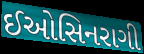
ઈઓસિનરાગી